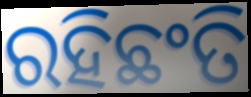
ରହିଛଂତି